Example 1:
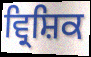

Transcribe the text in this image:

ਵ੍ਰਿਸ਼ਿਕ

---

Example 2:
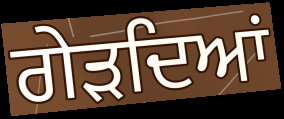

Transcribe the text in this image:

ਗੇੜਦਿਆਂ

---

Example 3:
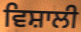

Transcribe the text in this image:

ਵਿਸ਼ਾਲੀ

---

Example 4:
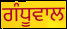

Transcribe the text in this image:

ਗੰਧੂਵਾਲ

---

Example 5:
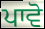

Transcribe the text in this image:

ਪਾਵੋ